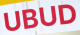
UBUD